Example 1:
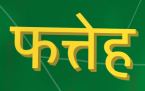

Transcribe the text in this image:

फत्तेह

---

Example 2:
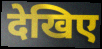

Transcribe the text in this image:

देखिए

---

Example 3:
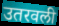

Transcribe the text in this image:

उतरवली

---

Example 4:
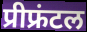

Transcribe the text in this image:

प्रीफ्रंटल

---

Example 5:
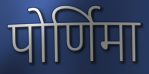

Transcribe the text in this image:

पोर्णिमा